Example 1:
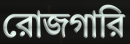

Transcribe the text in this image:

রোজগারি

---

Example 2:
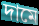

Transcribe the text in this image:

দামে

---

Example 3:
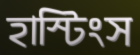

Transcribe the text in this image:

হাস্টিংস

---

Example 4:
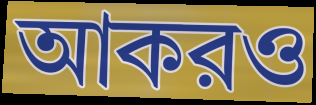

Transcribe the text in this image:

আকরও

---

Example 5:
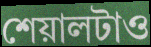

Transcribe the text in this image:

শেয়ালটাও